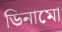
ডিনামো